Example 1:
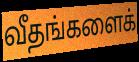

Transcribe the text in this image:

வீதங்களைக்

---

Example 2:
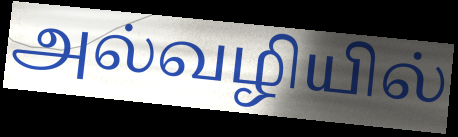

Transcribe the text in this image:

அல்வழியில்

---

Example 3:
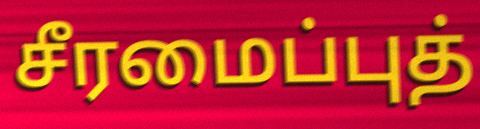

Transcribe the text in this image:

சீரமைப்புத்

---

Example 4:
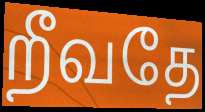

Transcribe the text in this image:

றீவதே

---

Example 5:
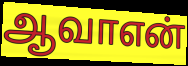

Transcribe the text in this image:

ஆவாஎன்